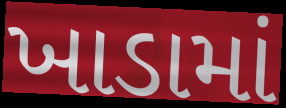
ખાડામાં